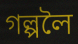
গল্পলৈ